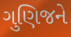
ગુણિજને